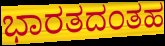
ಭಾರತದಂತಹ